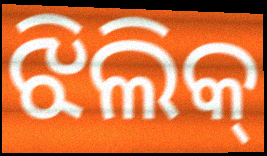
ଝିଲିକ୍